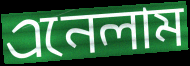
এনেলাম